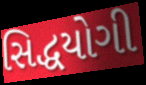
સિદ્ધયોગી